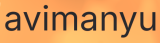
avimanyu